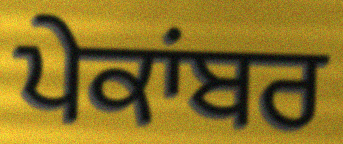
ਪੇਕਾਂਬਰ